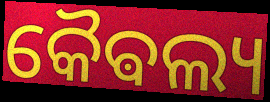
କୈଵଲ୍ୟ